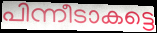
പിന്നീടാകട്ടെ